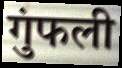
गुंफली